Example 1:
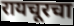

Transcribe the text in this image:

रायचूरचा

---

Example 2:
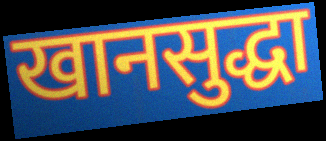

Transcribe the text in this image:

खानसुद्धा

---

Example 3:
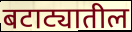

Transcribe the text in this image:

बटाट्यातील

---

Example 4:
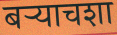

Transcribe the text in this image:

बर्‍याचशा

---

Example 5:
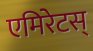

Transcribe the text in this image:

एमिरेटस्